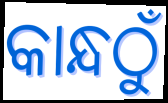
କାନ୍ଧଠୁଁ